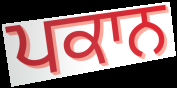
ਪਕਾਨ